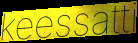
keessatti